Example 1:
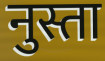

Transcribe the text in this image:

नुस्ता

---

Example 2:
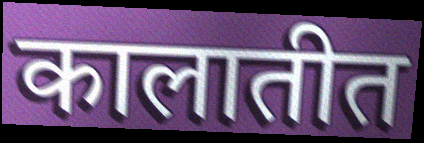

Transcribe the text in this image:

कालातीत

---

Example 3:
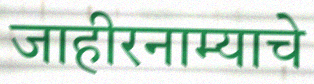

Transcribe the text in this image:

जाहीरनाम्याचे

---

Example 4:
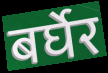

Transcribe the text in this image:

बर्घेर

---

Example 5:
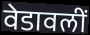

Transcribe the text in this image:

वेडावलीं